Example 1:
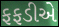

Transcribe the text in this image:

ફફડીએ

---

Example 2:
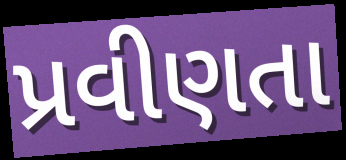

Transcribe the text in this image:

પ્રવીણતા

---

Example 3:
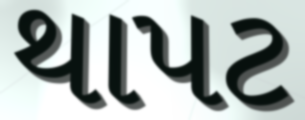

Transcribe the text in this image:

થાપટ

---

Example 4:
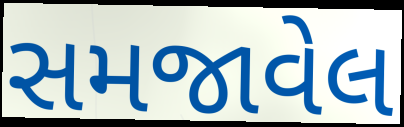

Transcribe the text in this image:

સમજાવેલ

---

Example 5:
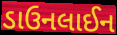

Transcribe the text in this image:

ડાઉનલાઈન